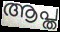
ആപ്ത